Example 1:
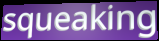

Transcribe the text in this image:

squeaking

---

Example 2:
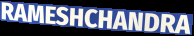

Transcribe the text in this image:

RAMESHCHANDRA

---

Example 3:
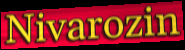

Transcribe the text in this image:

Nivarozin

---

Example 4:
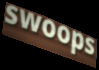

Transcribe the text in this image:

swoops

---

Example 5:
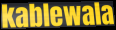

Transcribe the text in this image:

kablewala